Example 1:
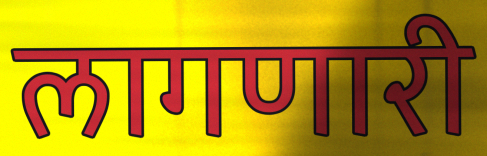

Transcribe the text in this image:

लागणारी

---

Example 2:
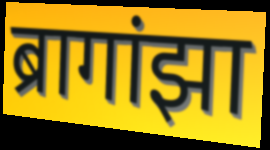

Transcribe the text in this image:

ब्रागांझा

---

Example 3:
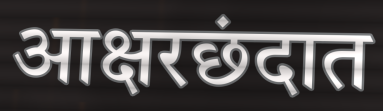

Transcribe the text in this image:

आक्षरछंदात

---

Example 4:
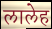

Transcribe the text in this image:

लालेह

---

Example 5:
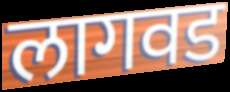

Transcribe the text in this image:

लागवड